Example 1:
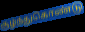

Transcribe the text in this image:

சூழ்ந்துகொண்டு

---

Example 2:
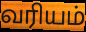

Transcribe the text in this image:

வரியம்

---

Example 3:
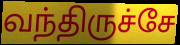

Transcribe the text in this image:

வந்திருச்சே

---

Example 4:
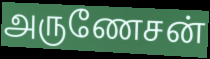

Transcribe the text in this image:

அருணேசன்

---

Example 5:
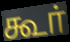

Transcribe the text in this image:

கூர்